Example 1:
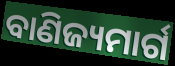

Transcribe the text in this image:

ବାଣିଜ୍ୟମାର୍ଗ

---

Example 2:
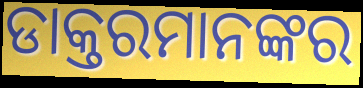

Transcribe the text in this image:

ଡାକ୍ତରମାନଙ୍କର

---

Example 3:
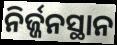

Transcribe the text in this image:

ନିର୍ଜ୍ଜନସ୍ଥାନ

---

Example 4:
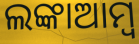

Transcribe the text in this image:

ଲଙ୍କାଆମ୍ବ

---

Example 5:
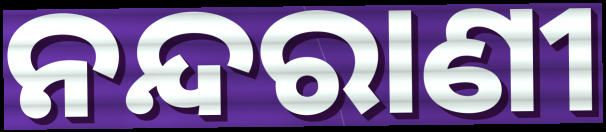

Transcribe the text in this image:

ନନ୍ଦରାଣୀ